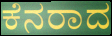
ಕೆನರಾದ